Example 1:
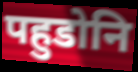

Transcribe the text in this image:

पहुडोनि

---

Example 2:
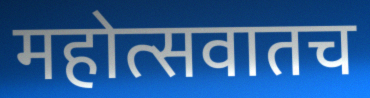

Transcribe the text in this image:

महोत्सवातच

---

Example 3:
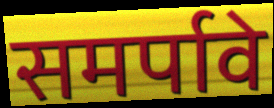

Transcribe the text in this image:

समर्पावे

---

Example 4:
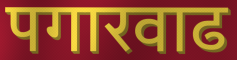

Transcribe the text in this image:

पगारवाढ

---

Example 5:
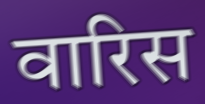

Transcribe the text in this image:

वारिस